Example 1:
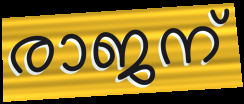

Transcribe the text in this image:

രാജന്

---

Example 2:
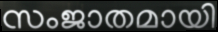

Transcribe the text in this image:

സംജാതമായി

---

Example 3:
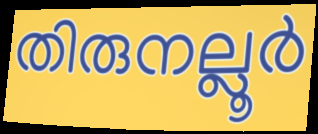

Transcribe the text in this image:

തിരുനല്ലൂർ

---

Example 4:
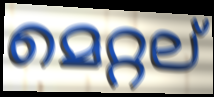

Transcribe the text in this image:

മെറ്റല്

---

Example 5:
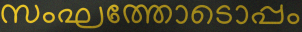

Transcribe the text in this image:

സംഘത്തോടൊപ്പം